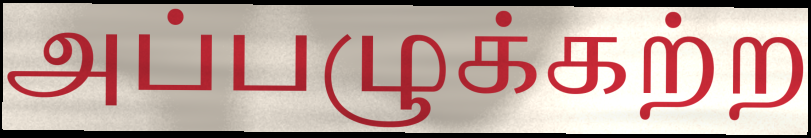
அப்பழுக்கற்ற